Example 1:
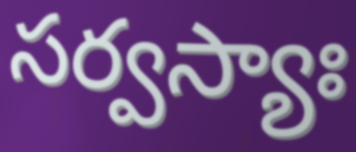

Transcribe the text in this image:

సర్వస్యాః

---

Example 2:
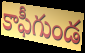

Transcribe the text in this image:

కాఫీగుండ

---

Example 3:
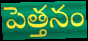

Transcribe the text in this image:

పెత్తనం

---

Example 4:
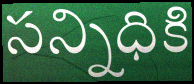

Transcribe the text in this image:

సన్నిధికి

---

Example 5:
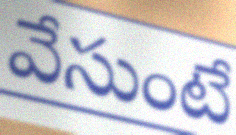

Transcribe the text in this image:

వేసుంటే